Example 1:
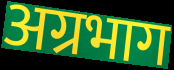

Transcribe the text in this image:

अग्रभाग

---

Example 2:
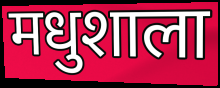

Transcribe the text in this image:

मधुशाला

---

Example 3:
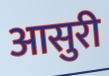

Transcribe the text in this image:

आसुरी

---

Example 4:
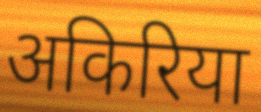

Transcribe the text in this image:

अकिरिया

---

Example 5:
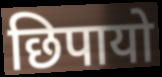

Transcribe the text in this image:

छिपायो